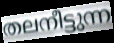
തലനീട്ടുന്ന